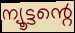
ന്യൂട്ടന്റെ